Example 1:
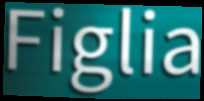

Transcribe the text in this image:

Figlia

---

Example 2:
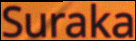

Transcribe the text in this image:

Suraka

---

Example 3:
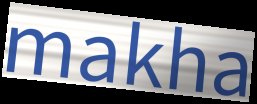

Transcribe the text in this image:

makha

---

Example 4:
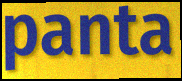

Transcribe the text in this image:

panta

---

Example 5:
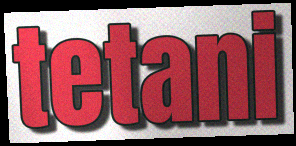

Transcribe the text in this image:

tetani